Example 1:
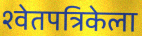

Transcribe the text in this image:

श्वेतपत्रिकेला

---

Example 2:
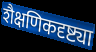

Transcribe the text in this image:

शैक्षणिकदृष्ट्या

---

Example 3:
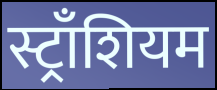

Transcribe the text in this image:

स्ट्राँशियम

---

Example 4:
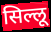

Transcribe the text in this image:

सिल्लू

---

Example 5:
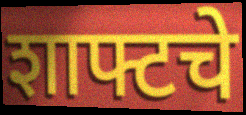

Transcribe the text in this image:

शाफ्टचे